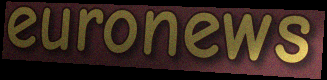
euronews